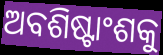
ଅବଶିଷ୍ଟାଂଶକୁ